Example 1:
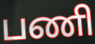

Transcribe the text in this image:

பணி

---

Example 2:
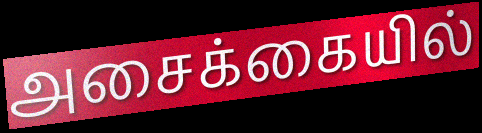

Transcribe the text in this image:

அசைக்கையில்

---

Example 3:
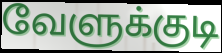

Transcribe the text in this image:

வேளுக்குடி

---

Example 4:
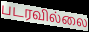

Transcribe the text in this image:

படரவில்லை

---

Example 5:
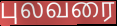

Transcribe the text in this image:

புலவரை